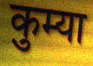
कुम्या